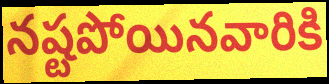
నష్టపోయినవారికి